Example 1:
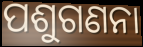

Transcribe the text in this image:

ପଶୁଗଣନା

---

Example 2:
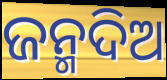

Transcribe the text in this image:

ଜନ୍ମଦିଅ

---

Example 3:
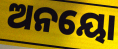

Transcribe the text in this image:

ଅନୟୋ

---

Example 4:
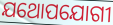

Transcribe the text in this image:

ଯଥୋପଯୋଗୀ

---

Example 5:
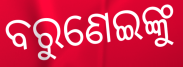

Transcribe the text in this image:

ବରୁଣେଇଙ୍କୁ